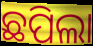
ଛପିଲା